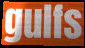
gulfs